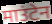
माउंटेन